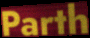
Parth